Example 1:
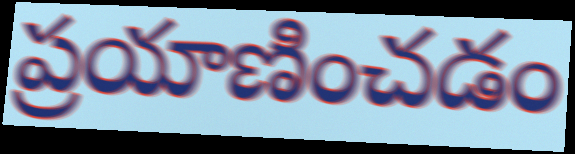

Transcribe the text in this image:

ప్రయాణించడం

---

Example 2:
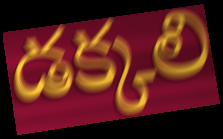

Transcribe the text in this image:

డక్కలి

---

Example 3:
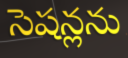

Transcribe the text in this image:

సెషన్లను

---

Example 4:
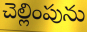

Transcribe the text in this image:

చెల్లింపును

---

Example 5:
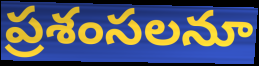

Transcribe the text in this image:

ప్రశంసలనూ